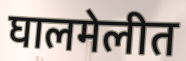
घालमेलीत